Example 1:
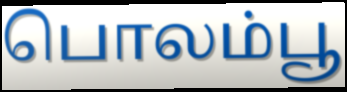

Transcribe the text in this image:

பொலம்பூ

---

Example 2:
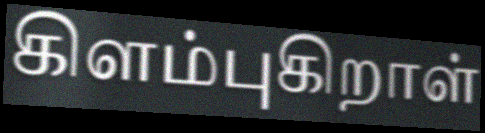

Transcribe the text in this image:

கிளம்புகிறாள்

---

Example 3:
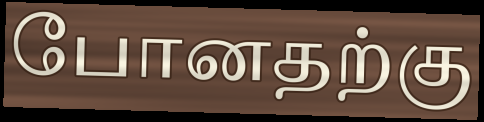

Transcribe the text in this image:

போனதற்கு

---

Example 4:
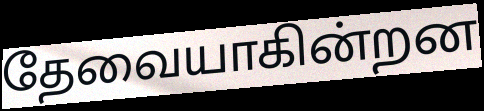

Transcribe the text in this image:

தேவையாகின்றன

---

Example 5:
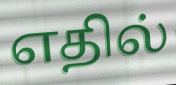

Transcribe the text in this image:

எதில்